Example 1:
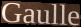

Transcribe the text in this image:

Gaulle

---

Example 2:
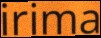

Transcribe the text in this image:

irima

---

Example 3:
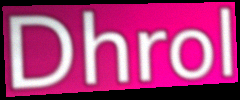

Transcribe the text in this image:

Dhrol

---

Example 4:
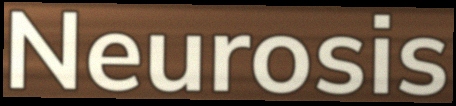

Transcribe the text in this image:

Neurosis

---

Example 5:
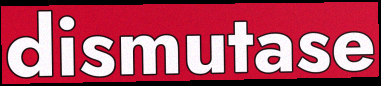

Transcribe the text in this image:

dismutase